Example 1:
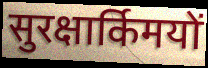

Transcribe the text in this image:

सुरक्षार्किमयों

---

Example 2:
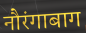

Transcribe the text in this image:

नौरंगाबाग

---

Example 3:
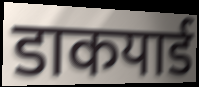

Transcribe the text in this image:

डाकयार्ड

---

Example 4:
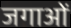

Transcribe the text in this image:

जगाओं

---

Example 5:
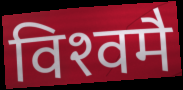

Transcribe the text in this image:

विश्वमै